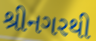
શ્રીનગરથી